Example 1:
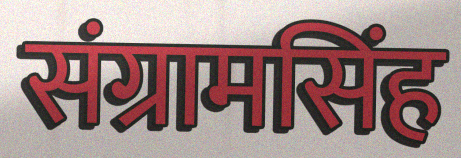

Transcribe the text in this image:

संग्रामसिंह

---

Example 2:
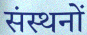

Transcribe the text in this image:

संस्थनों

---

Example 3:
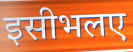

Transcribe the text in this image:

इसीभलए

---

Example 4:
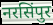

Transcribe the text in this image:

नरसिंपुर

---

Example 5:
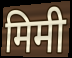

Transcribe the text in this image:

मिमी